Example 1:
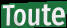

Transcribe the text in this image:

Toute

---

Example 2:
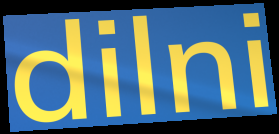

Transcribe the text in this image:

dilni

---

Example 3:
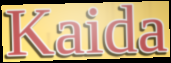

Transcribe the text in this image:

Kaida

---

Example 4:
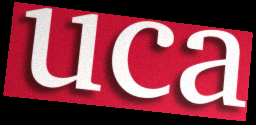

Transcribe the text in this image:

uca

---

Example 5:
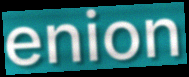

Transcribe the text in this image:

enion